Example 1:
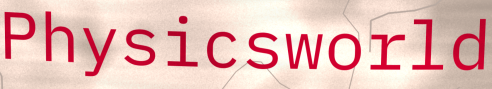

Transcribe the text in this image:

Physicsworld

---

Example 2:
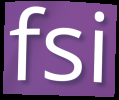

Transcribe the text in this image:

fsi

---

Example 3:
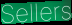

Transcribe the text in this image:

Sellers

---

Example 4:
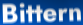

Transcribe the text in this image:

Bittern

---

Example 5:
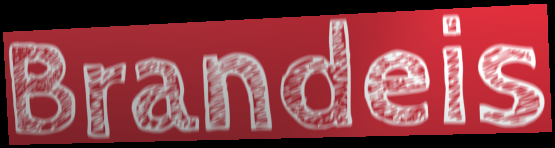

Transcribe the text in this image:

Brandeis